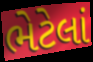
ભેટેલાં